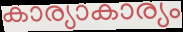
കാര്യാകാര്യം